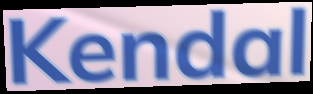
Kendal